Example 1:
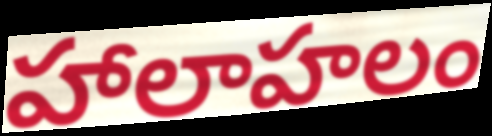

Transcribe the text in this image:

హాలాహలం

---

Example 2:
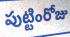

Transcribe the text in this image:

పుట్టింరోజు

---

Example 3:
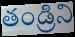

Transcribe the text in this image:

తండ్రిని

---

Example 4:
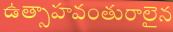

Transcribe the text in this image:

ఉత్సాహవంతురాలైన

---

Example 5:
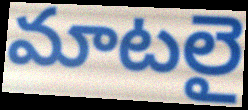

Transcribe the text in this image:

మాటలై